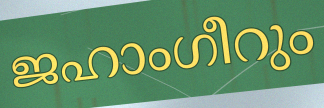
ജഹാംഗീറും